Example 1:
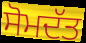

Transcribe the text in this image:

ਸੋਮਦੱਤ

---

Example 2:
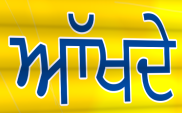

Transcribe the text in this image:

ਆੱਖਦੇ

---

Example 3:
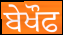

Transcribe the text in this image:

ਬੇਖੌਫ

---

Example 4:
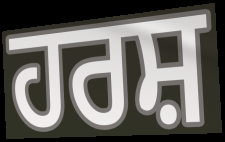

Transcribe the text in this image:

ਹਰਸ਼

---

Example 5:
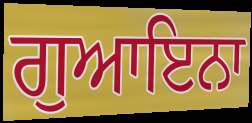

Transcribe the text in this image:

ਗੁਆਇਨਾ